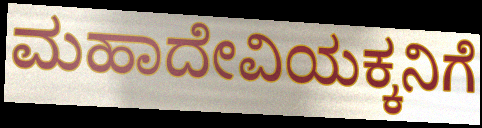
ಮಹಾದೇವಿಯಕ್ಕನಿಗೆ